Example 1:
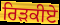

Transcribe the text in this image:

ਰਿੜਕੀਏ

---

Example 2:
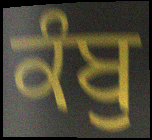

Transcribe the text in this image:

ਕੰਬੁ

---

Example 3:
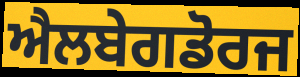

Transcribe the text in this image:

ਐਲਬੇਗਡੋਰਜ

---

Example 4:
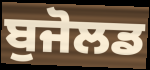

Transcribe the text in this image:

ਬੁਜੋਲਡ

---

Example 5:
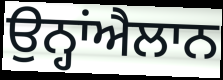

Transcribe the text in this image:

ਉਨ੍ਹਾਂਐਲਾਨ